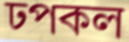
ঢপকল